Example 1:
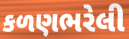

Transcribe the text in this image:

કળણભરેલી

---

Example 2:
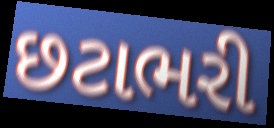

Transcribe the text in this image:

છટાભરી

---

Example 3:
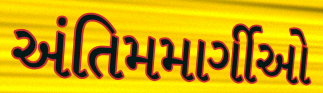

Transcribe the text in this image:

અંતિમમાર્ગીઓ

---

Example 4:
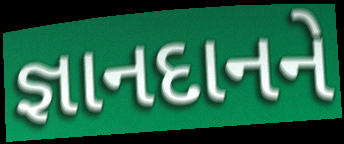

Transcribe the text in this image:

જ્ઞાનદાનને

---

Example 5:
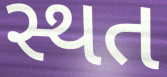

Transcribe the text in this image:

સ્થત